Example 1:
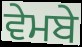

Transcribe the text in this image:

ਵੇਮਬੇ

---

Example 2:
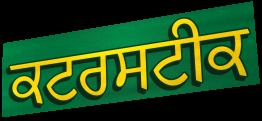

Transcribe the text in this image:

ਕਟਰਸਟੀਕ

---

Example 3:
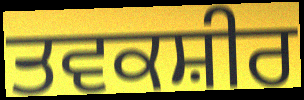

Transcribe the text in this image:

ਤਵਕਸ਼ੀਰ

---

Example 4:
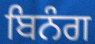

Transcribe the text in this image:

ਬਿਨੰਗ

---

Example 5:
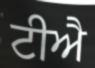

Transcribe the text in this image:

ਟੀਐ